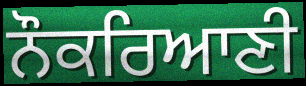
ਨੌਕਰਿਆਣੀ